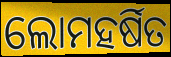
ଲୋମହର୍ଷିତ